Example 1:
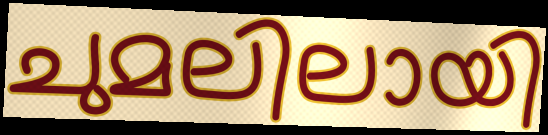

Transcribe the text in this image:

ചുമലിലായി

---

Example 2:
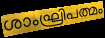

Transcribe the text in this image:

ശാംഘ്രിപത്മം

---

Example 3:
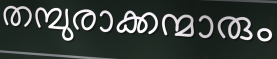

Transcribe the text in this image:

തമ്പുരാക്കന്മാരും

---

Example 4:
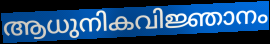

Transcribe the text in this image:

ആധുനികവിജ്ഞാനം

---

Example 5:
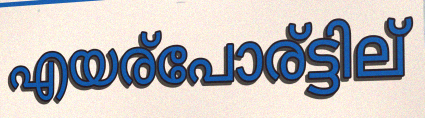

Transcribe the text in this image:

എയര്പോര്ട്ടില്